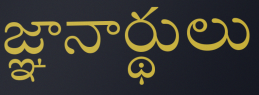
జ్ఞానార్థులు